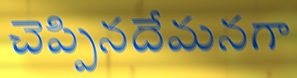
చెప్పినదేమనగా